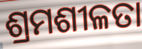
ଶ୍ରମଶୀଳତା